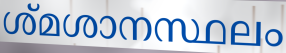
ശ്മശാനസ്ഥലം